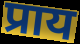
प्राय